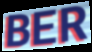
BER